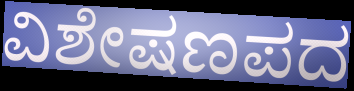
ವಿಶೇಷಣಪದ